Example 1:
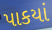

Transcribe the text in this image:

પાકયાં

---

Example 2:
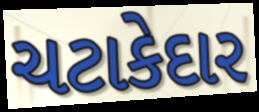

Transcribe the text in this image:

ચટાકેદાર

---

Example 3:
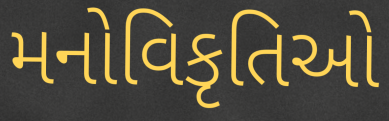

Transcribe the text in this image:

મનોવિકૃતિઓ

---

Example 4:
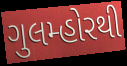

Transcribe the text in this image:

ગુલમ્હોરથી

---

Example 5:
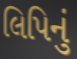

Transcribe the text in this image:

લિપિનું